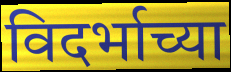
विदर्भाच्या